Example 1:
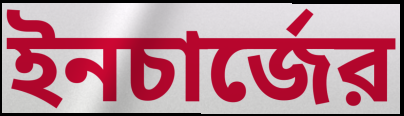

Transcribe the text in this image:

ইনচার্জের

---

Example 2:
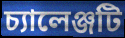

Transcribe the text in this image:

চ্যালেঞ্জটি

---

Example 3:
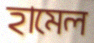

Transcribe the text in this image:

হামেল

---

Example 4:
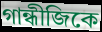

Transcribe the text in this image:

গান্ধীজিকে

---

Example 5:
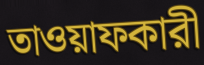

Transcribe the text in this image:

তাওয়াফকারী